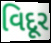
વિદૂર